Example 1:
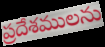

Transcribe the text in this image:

ప్రదేశములను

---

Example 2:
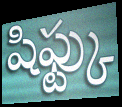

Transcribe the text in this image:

షిఫ్ట్కు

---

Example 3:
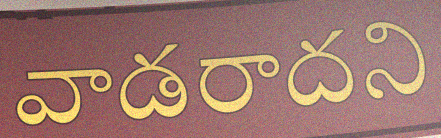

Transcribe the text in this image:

వాడరాదని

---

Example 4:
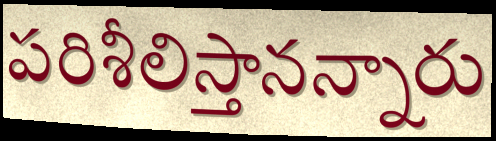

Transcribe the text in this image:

పరిశీలిస్తానన్నారు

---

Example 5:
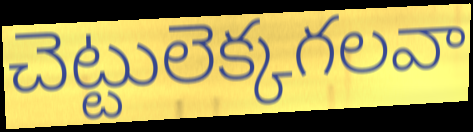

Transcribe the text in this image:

చెట్టులెక్కగలవా